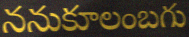
ననుకూలంబగు